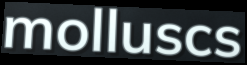
molluscs